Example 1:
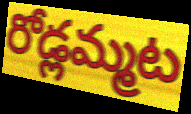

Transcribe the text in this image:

రోడ్లమ్మట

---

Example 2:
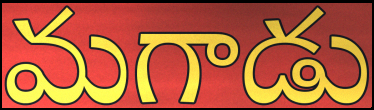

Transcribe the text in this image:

మగాడు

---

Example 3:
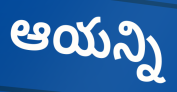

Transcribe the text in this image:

ఆయన్ని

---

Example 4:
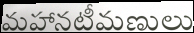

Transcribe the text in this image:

మహానటీమణులు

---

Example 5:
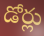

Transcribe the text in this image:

డోర్లు